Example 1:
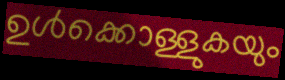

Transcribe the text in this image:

ഉൾക്കൊള്ളുകയും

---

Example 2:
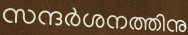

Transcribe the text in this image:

സന്ദർശനത്തിനു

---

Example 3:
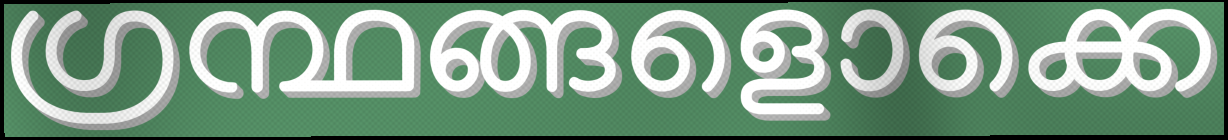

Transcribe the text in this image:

ഗ്രന്ഥങ്ങളൊക്കെ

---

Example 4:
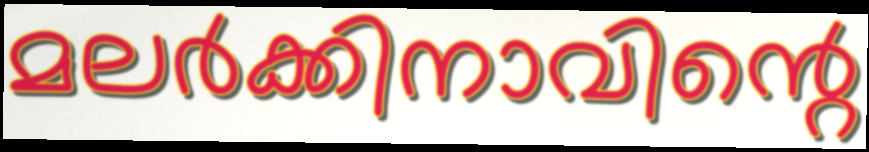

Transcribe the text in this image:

മലർക്കിനാവിന്റെ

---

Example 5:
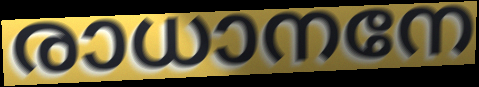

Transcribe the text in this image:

രാധാനനേ